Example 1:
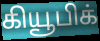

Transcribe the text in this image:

கியூபிக்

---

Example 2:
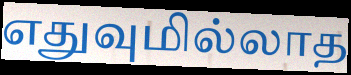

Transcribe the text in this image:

எதுவுமில்லாத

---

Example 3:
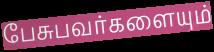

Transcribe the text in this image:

பேசுபவர்களையும்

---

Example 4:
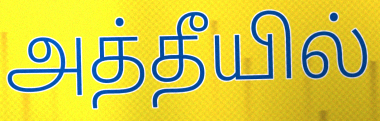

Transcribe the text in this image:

அத்தீயில்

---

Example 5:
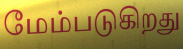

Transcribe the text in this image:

மேம்படுகிறது